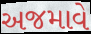
અજમાવે